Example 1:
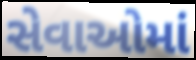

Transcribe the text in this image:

સેવાઓમાં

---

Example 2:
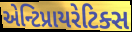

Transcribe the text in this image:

એન્ટિપ્રાયરેટિક્સ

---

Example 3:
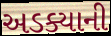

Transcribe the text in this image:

અડક્યાની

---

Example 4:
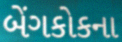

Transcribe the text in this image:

બેંગકોકના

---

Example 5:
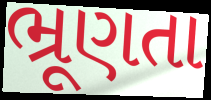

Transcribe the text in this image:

ભ્રૂણતા